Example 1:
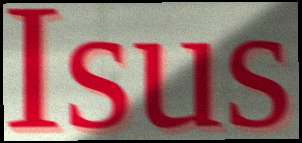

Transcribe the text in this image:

Isus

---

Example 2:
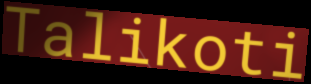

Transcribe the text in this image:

Talikoti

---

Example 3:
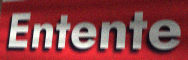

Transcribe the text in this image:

Entente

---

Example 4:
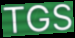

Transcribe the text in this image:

TGS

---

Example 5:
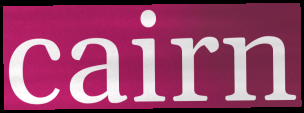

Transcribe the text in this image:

cairn